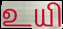
உயி